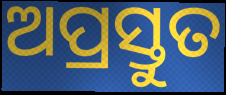
ଅପ୍ରସ୍ତୁତ